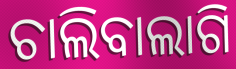
ଚାଲିବାଲାଗି